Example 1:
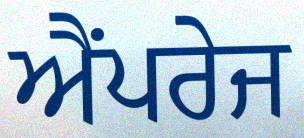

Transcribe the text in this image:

ਐਂਪਰੇਜ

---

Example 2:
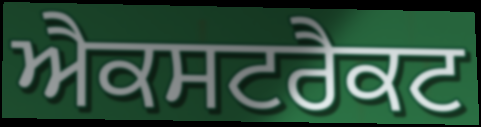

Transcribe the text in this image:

ਐਕਸਟਰੈਕਟ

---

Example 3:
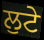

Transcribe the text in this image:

ਲੁਟੇ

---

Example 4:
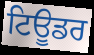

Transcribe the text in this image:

ਟਿਊਡਰ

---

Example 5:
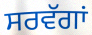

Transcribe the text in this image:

ਸਰਵੱਗਾਂ